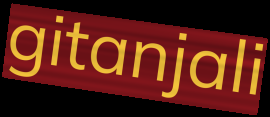
gitanjali